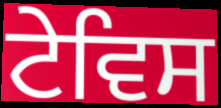
ਟੇਵਿਸ